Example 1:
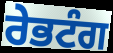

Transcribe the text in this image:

ਰੇਭਟੰਗ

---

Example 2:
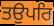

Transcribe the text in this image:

ਤਉਪਰਿ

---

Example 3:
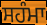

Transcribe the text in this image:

ਸਹੰਮਾ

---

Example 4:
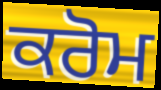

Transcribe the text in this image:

ਕਰੋਮ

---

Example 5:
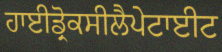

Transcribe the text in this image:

ਹਾਈਡ੍ਰੋਕਸੀਲੈਪੇਟਾਈਟ